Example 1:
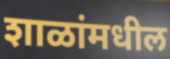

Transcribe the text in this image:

शाळांमधील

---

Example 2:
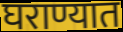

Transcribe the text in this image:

घराण्यात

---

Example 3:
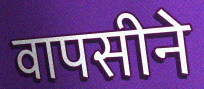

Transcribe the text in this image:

वापसीने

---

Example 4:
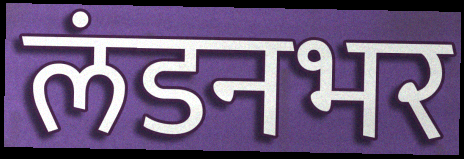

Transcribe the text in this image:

लंडनभर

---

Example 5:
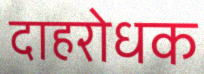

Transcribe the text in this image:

दाहरोधक